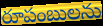
రూపంబులను